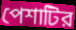
পেশাটির